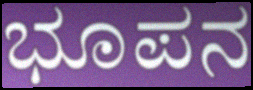
ಭೂಪನ